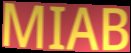
MIAB